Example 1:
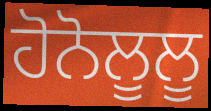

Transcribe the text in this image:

ਹੋਨੋਲੂਲੂ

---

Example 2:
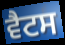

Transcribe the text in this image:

ਵੈਟਸ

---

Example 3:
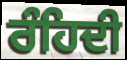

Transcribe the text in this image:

ਰੰਹਿਦੀ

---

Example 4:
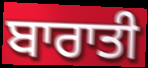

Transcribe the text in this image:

ਬਾਰਾਤੀ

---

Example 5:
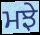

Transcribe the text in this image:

ਮਝੇ